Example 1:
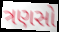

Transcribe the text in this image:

ત્રણસો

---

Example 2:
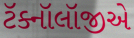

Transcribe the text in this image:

ટૅક્નૉલૉજીએ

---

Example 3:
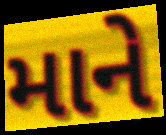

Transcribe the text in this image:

માને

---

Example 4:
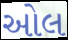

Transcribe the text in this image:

ઓલ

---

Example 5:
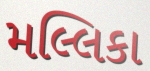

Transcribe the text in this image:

મલ્લિકા